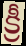
క్రీ